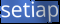
setiap